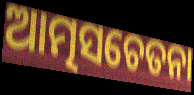
ଆତ୍ମସଚେତନା